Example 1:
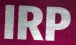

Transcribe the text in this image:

IRP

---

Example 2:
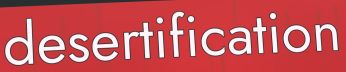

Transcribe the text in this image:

desertification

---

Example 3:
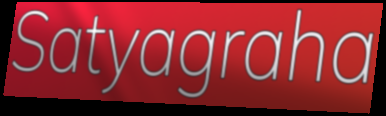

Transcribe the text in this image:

Satyagraha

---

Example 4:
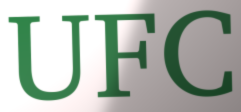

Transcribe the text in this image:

UFC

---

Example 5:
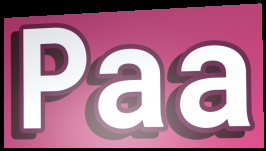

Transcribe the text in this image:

Paa